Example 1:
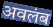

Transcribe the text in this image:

अवलंब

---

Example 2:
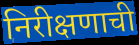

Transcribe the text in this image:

निरीक्षणाची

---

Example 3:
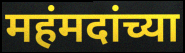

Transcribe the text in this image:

महंमदांच्या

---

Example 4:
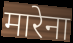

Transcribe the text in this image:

मारेना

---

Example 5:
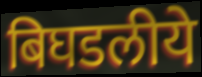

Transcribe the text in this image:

बिघडलीये